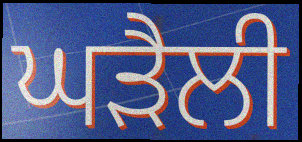
ਘੜੈਲੀ